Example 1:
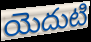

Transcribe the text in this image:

యెదుటి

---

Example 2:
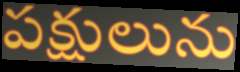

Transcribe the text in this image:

పక్షులును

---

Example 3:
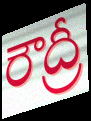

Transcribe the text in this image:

రౌద్రీ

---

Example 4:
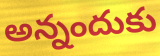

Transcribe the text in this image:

అన్నందుకు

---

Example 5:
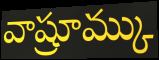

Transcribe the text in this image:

వాష్రూమ్కు